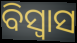
ବିସ୍ବାସ